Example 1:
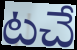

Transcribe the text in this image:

టచే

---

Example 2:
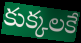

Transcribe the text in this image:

కుక్కలకే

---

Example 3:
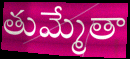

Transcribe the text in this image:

తుమ్మేతా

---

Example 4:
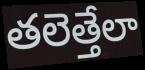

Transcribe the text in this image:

తలెత్తేలా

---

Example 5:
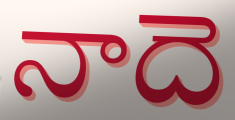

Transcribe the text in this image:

నాదె